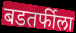
बडतर्फीला